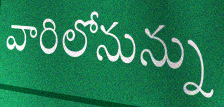
వారిలోనున్ను